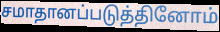
சமாதானப்படுத்தினோம்